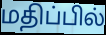
மதிப்பில்